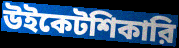
উইকেটশিকারি